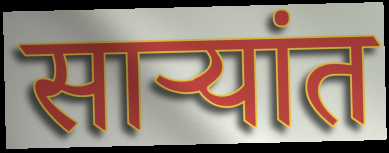
साऱ्यांत